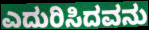
ಎದುರಿಸಿದವನು